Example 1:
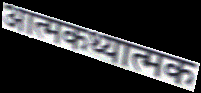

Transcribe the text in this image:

आत्मकथ्यात्मक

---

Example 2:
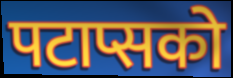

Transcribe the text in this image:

पटाप्सको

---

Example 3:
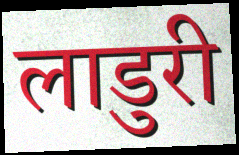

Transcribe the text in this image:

लाडुरी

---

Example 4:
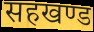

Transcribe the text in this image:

सहखण्ड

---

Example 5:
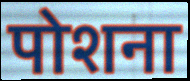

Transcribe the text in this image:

पोशना